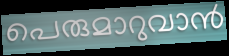
പെരുമാറുവാൻ